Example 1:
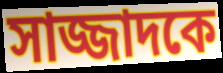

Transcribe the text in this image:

সাজ্জাদকে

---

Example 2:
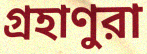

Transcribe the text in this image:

গ্রহাণুরা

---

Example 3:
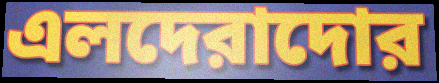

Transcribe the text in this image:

এলদেরাদোর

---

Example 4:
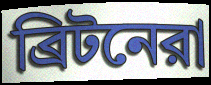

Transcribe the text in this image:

ব্রিটনেরা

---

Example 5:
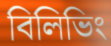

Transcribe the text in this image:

বিলিভিং